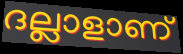
ദല്ലാളാണ്